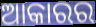
ଆକାରର